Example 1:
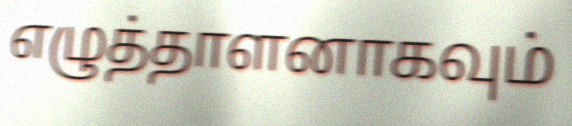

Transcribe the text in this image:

எழுத்தாளனாகவும்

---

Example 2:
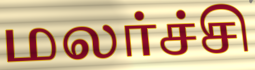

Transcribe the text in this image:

மலர்ச்சி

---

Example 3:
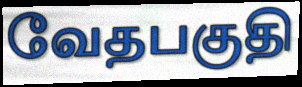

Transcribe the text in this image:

வேதபகுதி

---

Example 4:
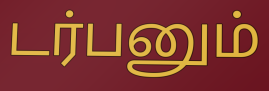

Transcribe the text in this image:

டர்பனும்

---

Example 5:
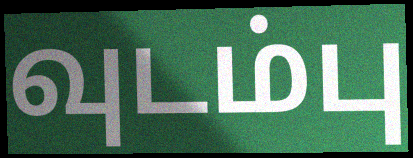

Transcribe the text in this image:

வுடம்பு